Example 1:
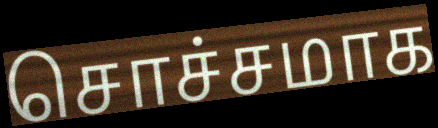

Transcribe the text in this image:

சொச்சமாக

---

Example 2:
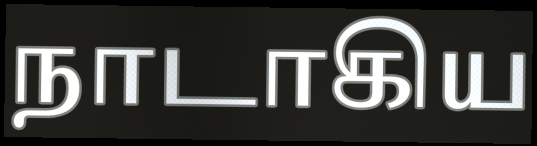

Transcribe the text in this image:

நாடாகிய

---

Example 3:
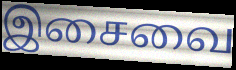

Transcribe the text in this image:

இசைவை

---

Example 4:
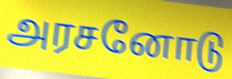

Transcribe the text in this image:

அரசனோடு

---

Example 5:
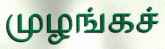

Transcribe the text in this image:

முழங்கச்